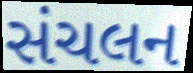
સંચલન